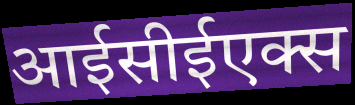
आईसीईएक्स